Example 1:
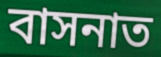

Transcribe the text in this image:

বাসনাত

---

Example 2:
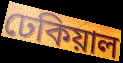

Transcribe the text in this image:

ঢেকিয়াল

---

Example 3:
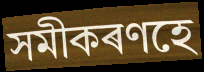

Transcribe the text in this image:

সমীকৰণহে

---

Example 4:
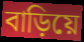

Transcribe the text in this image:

বাড়িয়ে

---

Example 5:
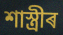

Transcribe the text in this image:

শাস্ত্ৰীৰ